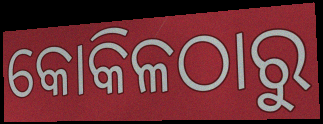
କୋକିଳଠାରୁ